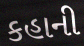
કહાની